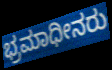
ಭ್ರಮಾಧೀನರು